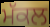
ਮੱਕਲ